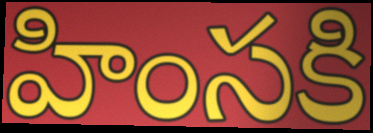
హింసకి